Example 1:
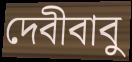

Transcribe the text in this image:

দেবীবাবু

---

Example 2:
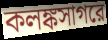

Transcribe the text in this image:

কলঙ্কসাগরে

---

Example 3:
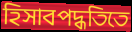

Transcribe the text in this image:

হিসাবপদ্ধতিতে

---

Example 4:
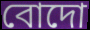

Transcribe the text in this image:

বোদো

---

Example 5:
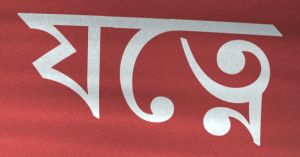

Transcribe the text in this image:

যত্নে